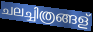
ചലച്ചിത്രങ്ങള്